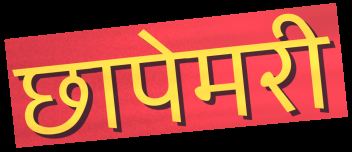
छापेमरी